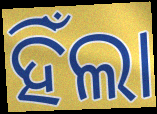
ହିଁଲା